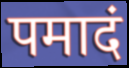
पमादं